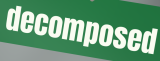
decomposed